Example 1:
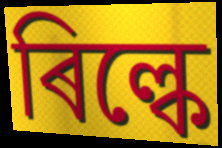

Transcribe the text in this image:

ৰিল্কে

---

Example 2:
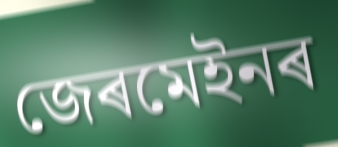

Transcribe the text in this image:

জেৰমেইনৰ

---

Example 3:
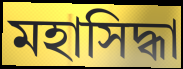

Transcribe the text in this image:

মহাসিদ্ধা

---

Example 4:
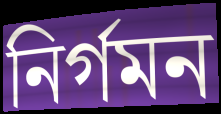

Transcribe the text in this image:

নিৰ্গমন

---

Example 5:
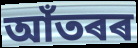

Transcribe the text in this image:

আঁতৰৰ